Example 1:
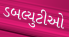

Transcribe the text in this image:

ડબલ્યુટીઓ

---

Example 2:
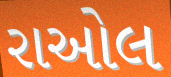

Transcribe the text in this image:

રાઓલ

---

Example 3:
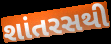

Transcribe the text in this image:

શાંતરસથી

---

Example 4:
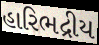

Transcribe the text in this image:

હારિભદ્રીય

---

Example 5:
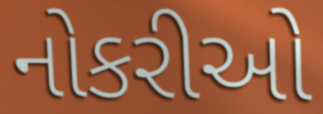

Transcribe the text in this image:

નોકરીઓ